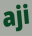
aji